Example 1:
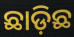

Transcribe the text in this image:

ଛାଡ଼ିଛ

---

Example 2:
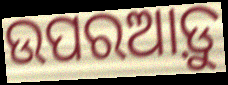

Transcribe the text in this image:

ଉପରଆଡ଼ୁ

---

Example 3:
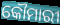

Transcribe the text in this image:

କୌମାରୀ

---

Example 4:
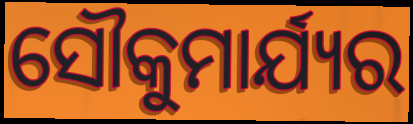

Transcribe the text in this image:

ସୌକୁମାର୍ଯ୍ୟର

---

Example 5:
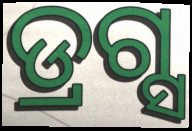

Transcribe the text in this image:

ଡ୍ରଗ୍ସ